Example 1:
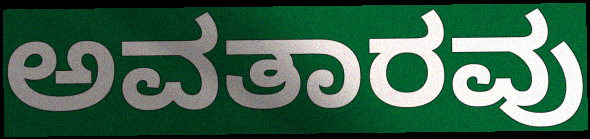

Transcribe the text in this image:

ಅವತಾರವು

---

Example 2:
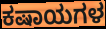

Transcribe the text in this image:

ಕಷಾಯಗಳ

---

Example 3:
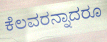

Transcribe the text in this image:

ಕೆಲವರನ್ನಾದರೂ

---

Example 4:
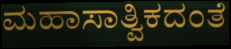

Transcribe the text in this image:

ಮಹಾಸಾತ್ವಿಕದಂತೆ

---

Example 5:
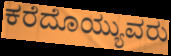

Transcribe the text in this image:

ಕರೆದೊಯ್ಯುವರು